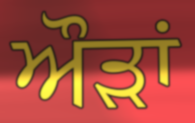
ਔੜਾਂ